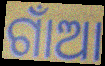
ଗାଁଆ